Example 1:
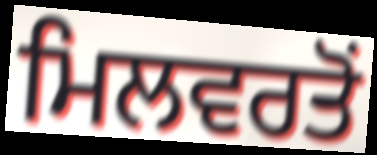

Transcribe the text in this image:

ਮਿਲਵਰਤੋਂ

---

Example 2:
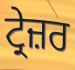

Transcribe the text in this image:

ਟ੍ਰੇਜ਼ਰ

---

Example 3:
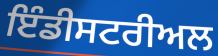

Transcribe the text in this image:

ਇੰਡੀਸਟਰੀਅਲ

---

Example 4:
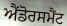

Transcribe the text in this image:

ਐਂਡੋਰਸਮੈਂਟ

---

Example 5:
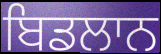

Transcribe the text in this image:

ਬਿਡਲਾਨ